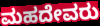
ಮಹದೇವರು